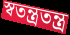
স্বতন্ত্ৰতন্ত্ৰ